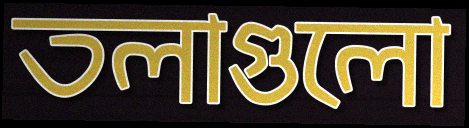
তলাগুলো